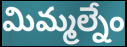
మిమ్మల్నేం